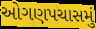
ઓગણપચાસમું